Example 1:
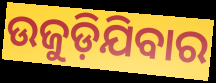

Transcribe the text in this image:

ଉଜୁଡ଼ିଯିବାର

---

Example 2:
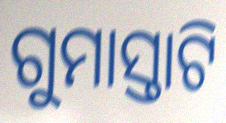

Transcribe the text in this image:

ଗୁମାସ୍ତାଟି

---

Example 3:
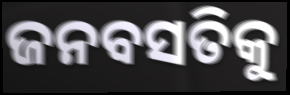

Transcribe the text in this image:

ଜନବସତିକୁ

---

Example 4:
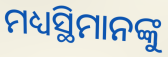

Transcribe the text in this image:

ମଧ୍ୟସ୍ଥିମାନଙ୍କୁ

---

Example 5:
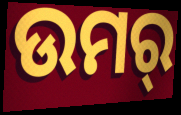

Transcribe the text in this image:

ଉମର୍